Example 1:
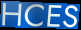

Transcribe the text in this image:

HCES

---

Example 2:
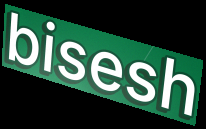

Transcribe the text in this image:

bisesh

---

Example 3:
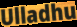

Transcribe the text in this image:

Ulladhu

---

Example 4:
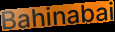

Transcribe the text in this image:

Bahinabai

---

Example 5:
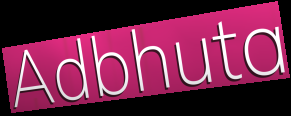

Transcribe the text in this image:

Adbhuta